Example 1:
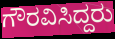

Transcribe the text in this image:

ಗೌರವಿಸಿದ್ದರು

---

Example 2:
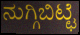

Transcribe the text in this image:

ನುಗ್ಗಿಬಿಟ್ಟೆ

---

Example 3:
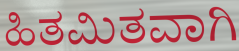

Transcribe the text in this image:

ಹಿತಮಿತವಾಗಿ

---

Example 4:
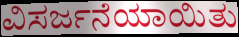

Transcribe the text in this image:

ವಿಸರ್ಜನೆಯಾಯಿತು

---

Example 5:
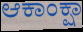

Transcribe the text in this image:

ಆಕಾಂಕ್ಷಾ